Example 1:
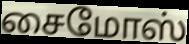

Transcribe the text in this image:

சைமோஸ்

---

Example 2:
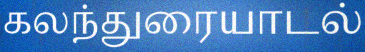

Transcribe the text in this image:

கலந்துரையாடல்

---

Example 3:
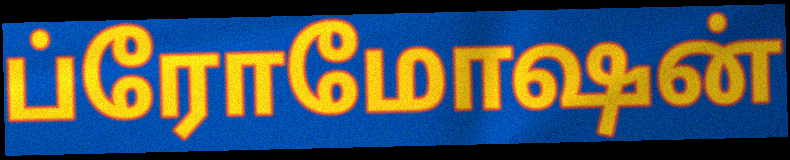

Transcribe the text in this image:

ப்ரோமோஷன்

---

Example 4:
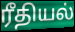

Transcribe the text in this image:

ரீதியல்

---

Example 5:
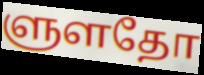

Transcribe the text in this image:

ளுளதோ